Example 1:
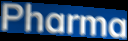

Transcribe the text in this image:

Pharma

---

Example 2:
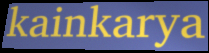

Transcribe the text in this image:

kainkarya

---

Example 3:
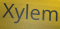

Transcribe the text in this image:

Xylem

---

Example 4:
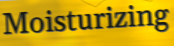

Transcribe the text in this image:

Moisturizing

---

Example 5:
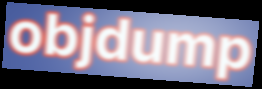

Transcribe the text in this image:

objdump